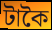
টাকৈ